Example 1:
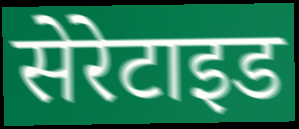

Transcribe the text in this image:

सेरेटाइड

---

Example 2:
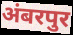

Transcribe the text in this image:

अंबरपुर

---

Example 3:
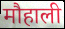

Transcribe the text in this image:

मौहाली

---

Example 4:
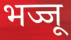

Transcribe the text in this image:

भज्जू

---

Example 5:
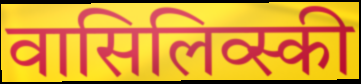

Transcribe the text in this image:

वासिलिव्स्की